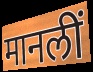
मानलीं